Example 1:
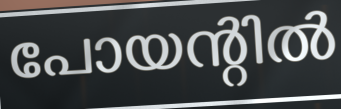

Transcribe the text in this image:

പോയന്റിൽ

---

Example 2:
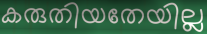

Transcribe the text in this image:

കരുതിയതേയില്ല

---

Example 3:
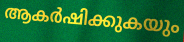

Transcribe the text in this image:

ആകർഷിക്കുകയും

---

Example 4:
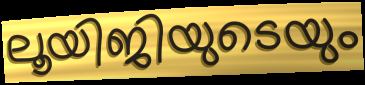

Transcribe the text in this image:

ലൂയിജിയുടെയും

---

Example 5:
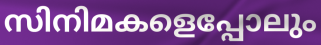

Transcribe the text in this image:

സിനിമകളെപ്പോലും